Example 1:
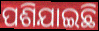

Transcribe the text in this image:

ପଶିଯାଇଛି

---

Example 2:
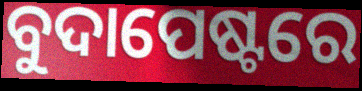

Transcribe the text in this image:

ବୁଦାପେଷ୍ଟରେ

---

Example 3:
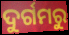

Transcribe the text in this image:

ଦୁର୍ଗମରୁ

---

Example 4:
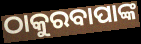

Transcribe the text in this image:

ଠାକୁରବାପାଙ୍କ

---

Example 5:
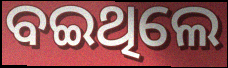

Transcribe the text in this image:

ବଇଥିଲେ